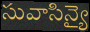
సువాసిన్యై